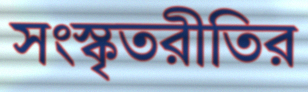
সংস্কৃতরীতির